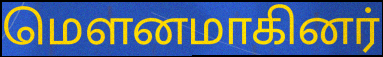
மௌனமாகினர்